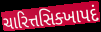
ચારિત્તસિક્ખાપદં